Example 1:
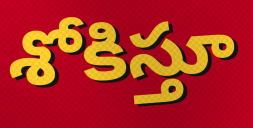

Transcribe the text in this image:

శోకిస్తూ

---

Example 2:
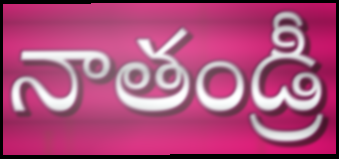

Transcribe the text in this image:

నాతండ్రీ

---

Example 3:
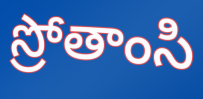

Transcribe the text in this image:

స్రోతాంసి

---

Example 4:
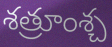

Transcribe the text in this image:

శత్రూంశ్చ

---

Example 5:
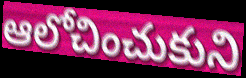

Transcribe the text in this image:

ఆలోచించుకుని